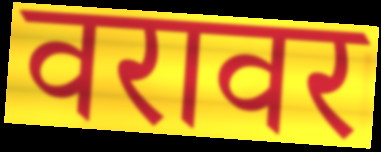
वरावर